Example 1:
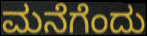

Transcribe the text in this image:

ಮನೆಗೆಂದು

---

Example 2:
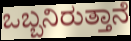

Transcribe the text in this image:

ಒಬ್ಬನಿರುತ್ತಾನೆ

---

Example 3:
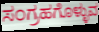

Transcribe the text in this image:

ಸಂಗ್ರಹಗೊಳ್ಳುವ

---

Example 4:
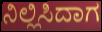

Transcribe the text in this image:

ನಿಲ್ಲಿಸಿದಾಗ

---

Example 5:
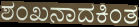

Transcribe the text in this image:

ಶಂಖನಾದಕಿಂತ